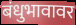
बंधुभावावर